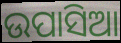
ଉପାସିଆ